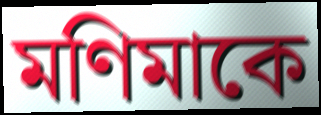
মণিমাকে